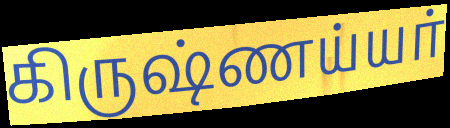
கிருஷ்ணய்யர்